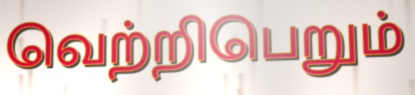
வெற்றிபெறும்